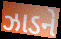
ઝાડને